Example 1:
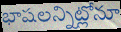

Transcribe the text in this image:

భాషలన్నిట్లోనూ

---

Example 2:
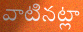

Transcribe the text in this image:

వాటినట్లా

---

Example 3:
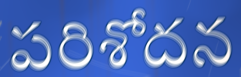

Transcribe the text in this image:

పరిశోదన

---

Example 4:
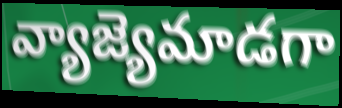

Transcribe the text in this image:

వ్యాజ్యెమాడగా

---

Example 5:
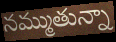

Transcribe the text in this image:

నమ్ముతున్నా